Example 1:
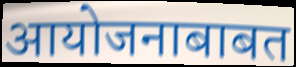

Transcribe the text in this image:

आयोजनाबाबत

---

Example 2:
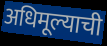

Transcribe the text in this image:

अधिमूल्याची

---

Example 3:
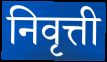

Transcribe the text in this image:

निवृत्ती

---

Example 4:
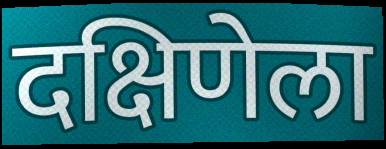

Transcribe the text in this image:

दक्षिणेला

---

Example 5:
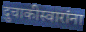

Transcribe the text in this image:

दुचाकीस्वारांना